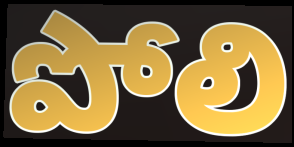
పోలి